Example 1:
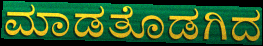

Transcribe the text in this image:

ಮಾಡತೊಡಗಿದ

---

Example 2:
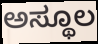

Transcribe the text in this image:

ಅಸ್ಥೂಲ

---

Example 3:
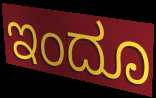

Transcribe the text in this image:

ಇಂದೂ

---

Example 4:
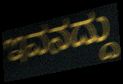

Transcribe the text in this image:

ಇವನದ್ದು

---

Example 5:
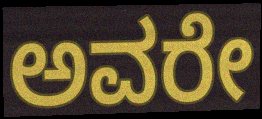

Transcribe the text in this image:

ಅವರೇ